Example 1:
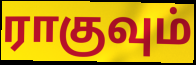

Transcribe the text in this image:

ராகுவும்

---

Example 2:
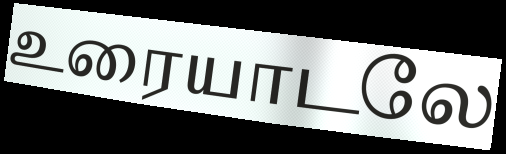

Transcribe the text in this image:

உரையாடலே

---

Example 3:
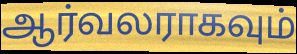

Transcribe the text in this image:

ஆர்வலராகவும்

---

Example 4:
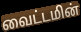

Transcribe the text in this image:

வைட்டமின்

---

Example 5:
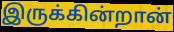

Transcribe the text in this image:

இருக்கின்றான்